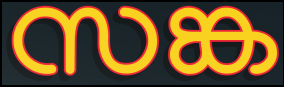
സങ്ക